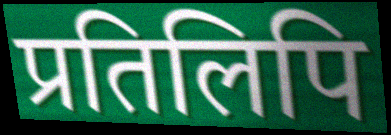
प्रतिलिपि